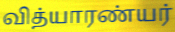
வித்யாரண்யர்